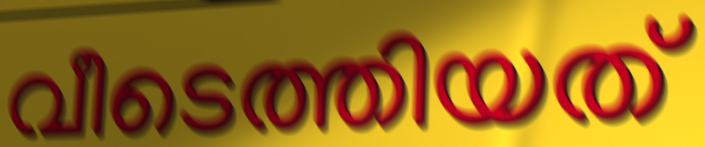
വീടെത്തിയത്